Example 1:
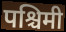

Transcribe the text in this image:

पश्चिमी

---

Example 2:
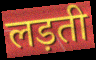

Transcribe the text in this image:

लड़ती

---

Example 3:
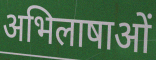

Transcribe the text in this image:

अभिलाषाओं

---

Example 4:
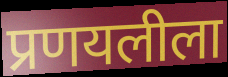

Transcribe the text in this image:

प्रणयलीला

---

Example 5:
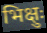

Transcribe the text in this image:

भिक्षुः